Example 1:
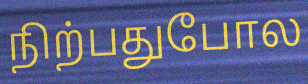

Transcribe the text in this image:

நிற்பதுபோல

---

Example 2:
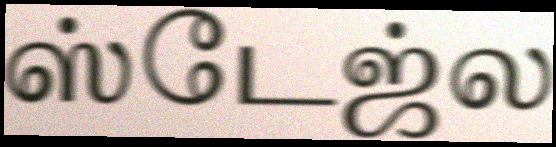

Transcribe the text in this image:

ஸ்டேஜ்ல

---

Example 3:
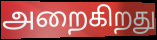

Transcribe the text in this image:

அறைகிறது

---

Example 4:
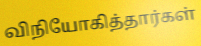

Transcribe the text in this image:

விநியோகித்தார்கள்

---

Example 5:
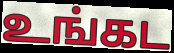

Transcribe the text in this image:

உங்கட